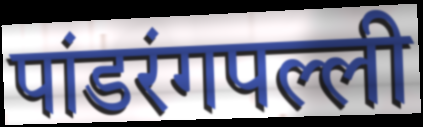
पांडरंगपल्ली